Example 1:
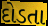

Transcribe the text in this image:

દોડતા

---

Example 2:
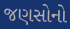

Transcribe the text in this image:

જણસોનો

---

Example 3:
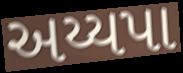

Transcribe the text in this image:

અય્યપા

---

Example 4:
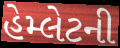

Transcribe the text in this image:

હેમ્લેટની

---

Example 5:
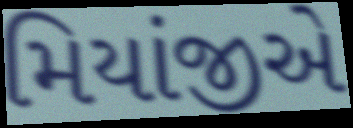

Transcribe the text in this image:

મિયાંજીએ